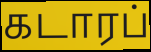
கடாரப்